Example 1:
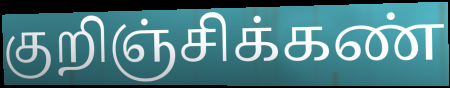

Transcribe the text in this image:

குறிஞ்சிக்கண்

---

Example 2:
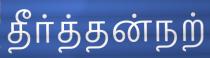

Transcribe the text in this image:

தீர்த்தன்நற்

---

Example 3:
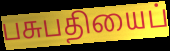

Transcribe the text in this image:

பசுபதியைப்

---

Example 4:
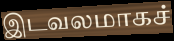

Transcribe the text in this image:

இடவலமாகச்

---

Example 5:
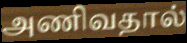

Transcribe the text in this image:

அணிவதால்